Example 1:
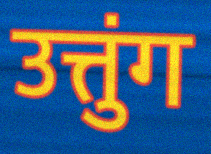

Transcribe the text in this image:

उत्तुंग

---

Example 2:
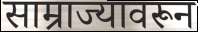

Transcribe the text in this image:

साम्राज्यावरून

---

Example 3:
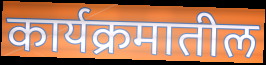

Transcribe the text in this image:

कार्यक्रमातील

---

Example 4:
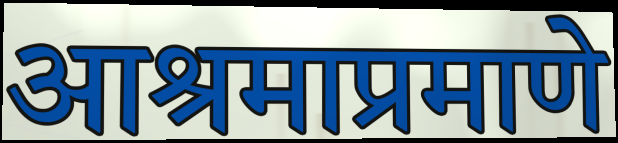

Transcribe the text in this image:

आश्रमाप्रमाणे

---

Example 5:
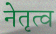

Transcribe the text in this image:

नेतृत्व